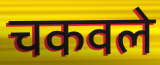
चकवले